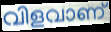
വിളവാണ്